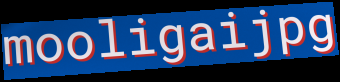
mooligaijpg